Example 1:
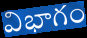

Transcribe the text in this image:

విభాగం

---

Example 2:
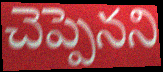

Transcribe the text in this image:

చెప్పెనని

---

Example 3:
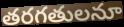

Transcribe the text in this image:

తరగతులనూ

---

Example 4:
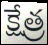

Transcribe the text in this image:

క్షేత్ర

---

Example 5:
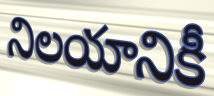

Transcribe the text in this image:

నిలయానికీ